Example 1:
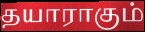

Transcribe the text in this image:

தயாராகும்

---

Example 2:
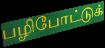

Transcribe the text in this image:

பழிபோட்டுக்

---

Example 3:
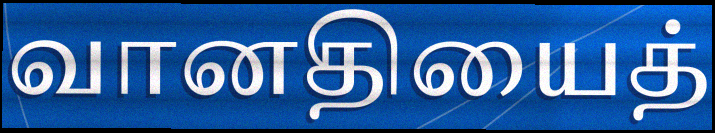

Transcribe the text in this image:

வானதியைத்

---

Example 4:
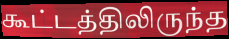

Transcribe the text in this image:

கூட்டத்திலிருந்த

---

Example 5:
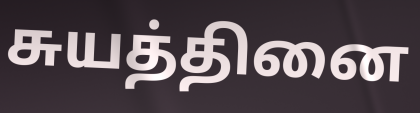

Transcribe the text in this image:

சுயத்தினை